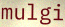
mulgi